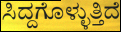
ಸಿದ್ದಗೊಳ್ಳುತ್ತಿದೆ